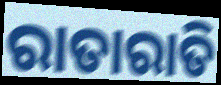
ରାତାରାତି